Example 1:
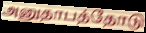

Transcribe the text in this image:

அனுதாபத்தோடு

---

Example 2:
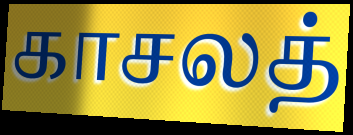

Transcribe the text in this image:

காசலத்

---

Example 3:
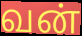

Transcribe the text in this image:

வன்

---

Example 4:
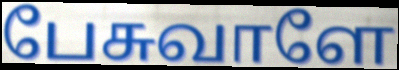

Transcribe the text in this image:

பேசுவாளே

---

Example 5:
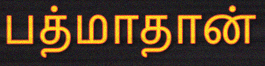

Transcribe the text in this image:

பத்மாதான்